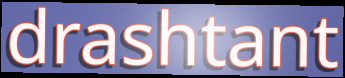
drashtant